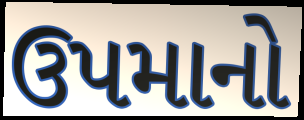
ઉપમાનો